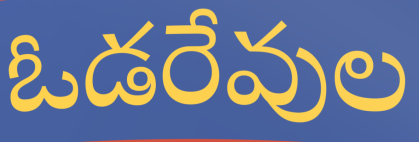
ఓడరేవుల